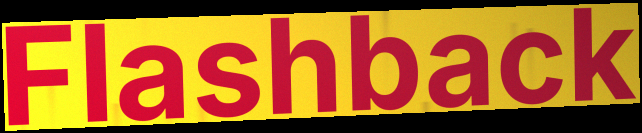
Flashback